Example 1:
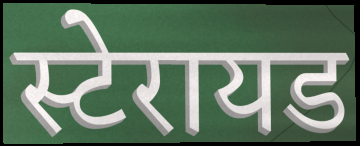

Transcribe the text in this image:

स्टेरायड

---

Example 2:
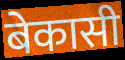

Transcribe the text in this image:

बेकासी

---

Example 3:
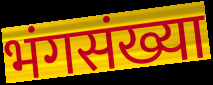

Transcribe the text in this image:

भंगसंख्या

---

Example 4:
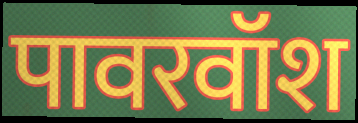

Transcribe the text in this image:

पावरवॉश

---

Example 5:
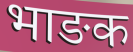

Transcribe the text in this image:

भाङक